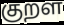
குறள